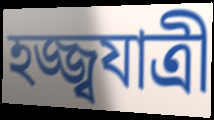
হজ্জ্বযাত্রী